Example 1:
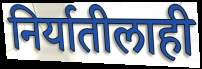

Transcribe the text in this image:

निर्यातीलाही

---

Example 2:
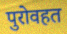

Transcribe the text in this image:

पुरोवहत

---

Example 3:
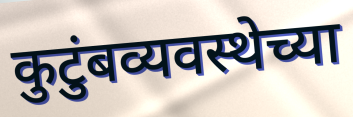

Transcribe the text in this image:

कुटुंबव्यवस्थेच्या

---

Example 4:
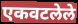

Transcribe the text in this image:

एकवटलेले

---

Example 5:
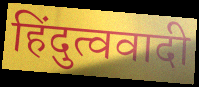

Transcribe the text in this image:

हिंदुत्ववादी